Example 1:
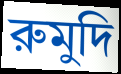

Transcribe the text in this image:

রুমুদি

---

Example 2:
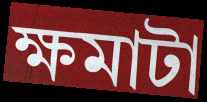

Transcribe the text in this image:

ক্ষমাটা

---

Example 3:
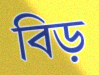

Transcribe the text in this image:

বিড়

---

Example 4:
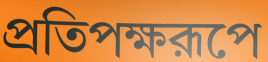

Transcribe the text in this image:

প্রতিপক্ষরূপে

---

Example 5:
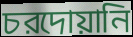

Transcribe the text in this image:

চরদোয়ানি